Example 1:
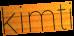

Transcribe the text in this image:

kimti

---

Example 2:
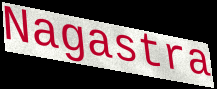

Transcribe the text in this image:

Nagastra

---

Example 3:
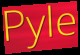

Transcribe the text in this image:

Pyle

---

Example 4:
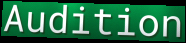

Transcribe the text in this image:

Audition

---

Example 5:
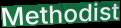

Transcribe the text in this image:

Methodist